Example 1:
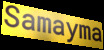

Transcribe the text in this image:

Samayma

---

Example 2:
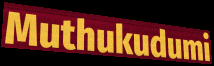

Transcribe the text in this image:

Muthukudumi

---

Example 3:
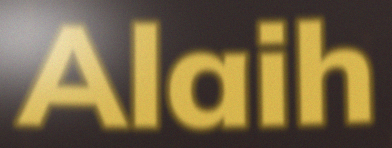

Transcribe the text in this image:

Alaih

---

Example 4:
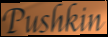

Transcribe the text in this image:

Pushkin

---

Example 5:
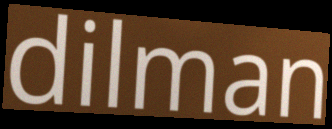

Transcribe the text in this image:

dilman